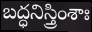
బద్ధనిస్త్రింశాః